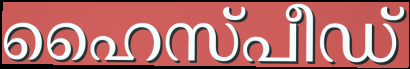
ഹൈസ്പീഡ്